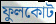
ফুলকোট